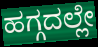
ಹಗ್ಗದಲ್ಲೇ